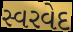
સ્વરવેદ